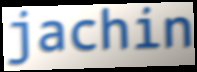
jachin